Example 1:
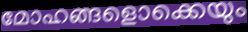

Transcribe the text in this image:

മോഹങ്ങളൊക്കെയും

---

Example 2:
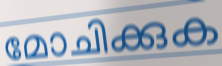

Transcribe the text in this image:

മോചിക്കുക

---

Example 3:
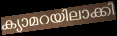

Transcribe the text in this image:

ക്യാമറയിലാക്കി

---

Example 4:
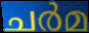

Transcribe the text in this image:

ചർമ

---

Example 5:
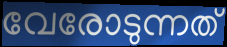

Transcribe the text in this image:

വേരോടുന്നത്